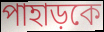
পাহাড়কে